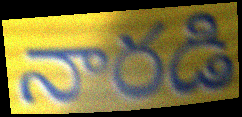
నారడి